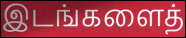
இடங்களைத்